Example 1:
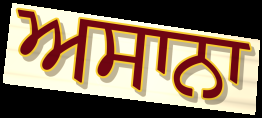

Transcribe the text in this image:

ਅਸਾਨਾ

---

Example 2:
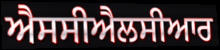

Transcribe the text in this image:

ਐਸਸੀਐਲਸੀਆਰ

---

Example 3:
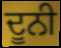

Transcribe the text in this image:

ਦੂਨੀ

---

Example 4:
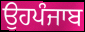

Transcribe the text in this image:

ਉਹਪੰਜਾਬ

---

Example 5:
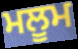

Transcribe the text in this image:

ਮਲੂਮ